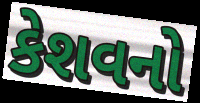
કેશવનો